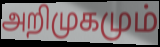
அறிமுகமும்